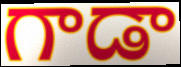
గాడా